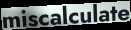
miscalculate